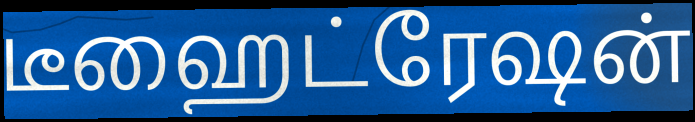
டீஹைட்ரேஷன்